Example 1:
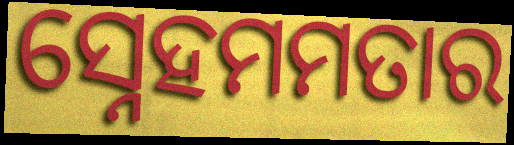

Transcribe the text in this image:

ସ୍ନେହମମତାର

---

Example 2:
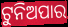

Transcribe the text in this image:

ଟୁନିଅପାର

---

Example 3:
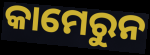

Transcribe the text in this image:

କାମେରୁନ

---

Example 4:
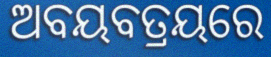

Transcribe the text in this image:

ଅବୟବତ୍ରୟରେ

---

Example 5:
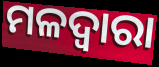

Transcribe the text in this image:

ମଳଦ୍ଵାରା